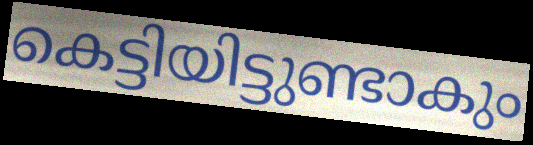
കെട്ടിയിട്ടുണ്ടാകും